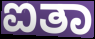
ಐತಾ